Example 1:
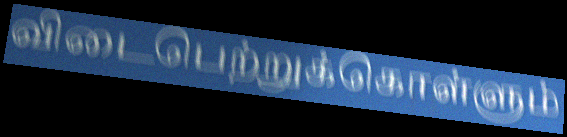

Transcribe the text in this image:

விடைபெற்றுக்கொள்ளும்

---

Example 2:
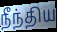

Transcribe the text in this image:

நீந்திய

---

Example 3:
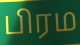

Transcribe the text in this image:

பிரம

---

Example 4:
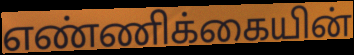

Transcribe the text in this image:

எண்ணிக்கையின்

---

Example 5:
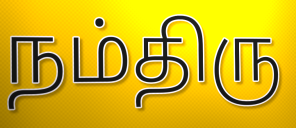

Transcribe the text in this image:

நம்திரு